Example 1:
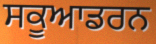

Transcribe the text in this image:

ਸਕੂਆਡਰਨ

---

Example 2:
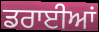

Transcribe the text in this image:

ਡਰਾਈਆਂ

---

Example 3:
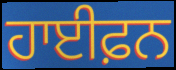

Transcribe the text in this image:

ਹਾਈਫ਼ਨ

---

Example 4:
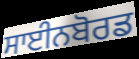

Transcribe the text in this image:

ਸਾਈਨਬੋਰਡ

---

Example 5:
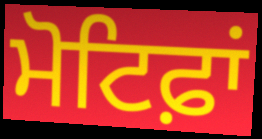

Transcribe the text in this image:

ਮੋਟਿਫ਼ਾਂ